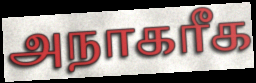
அநாகரீக